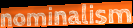
nominalism